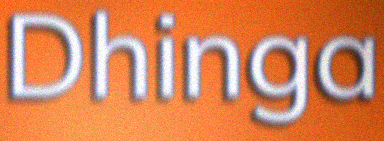
Dhinga